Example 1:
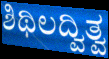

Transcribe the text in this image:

ಶಿಥಿಲದ್ವಿತ್ವ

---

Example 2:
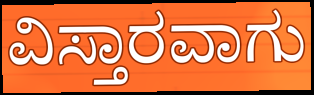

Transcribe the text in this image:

ವಿಸ್ತಾರವಾಗು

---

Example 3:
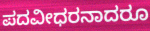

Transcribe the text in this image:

ಪದವೀಧರನಾದರೂ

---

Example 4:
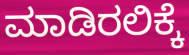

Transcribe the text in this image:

ಮಾಡಿರಲಿಕ್ಕೆ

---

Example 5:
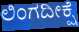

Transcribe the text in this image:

ಲಿಂಗದೀಕ್ಷೆ